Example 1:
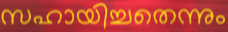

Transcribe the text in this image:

സഹായിച്ചതെന്നും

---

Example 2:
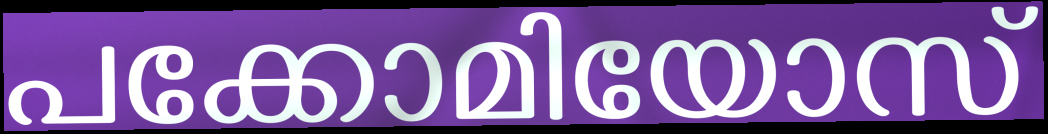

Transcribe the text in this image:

പക്കോമിയോസ്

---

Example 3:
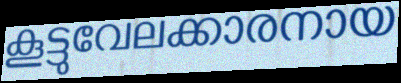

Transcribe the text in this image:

കൂട്ടുവേലക്കാരനായ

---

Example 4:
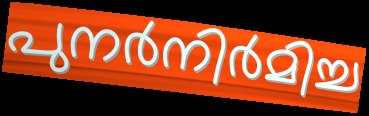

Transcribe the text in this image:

പുനർനിർമിച്ച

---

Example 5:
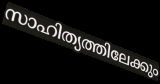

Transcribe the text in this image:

സാഹിത്യത്തിലേക്കും